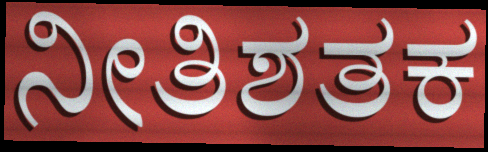
ನೀತಿಶತಕ